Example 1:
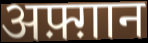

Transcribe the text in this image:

अफ़्ग़ान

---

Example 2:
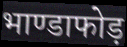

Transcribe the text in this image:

भाण्डाफोड़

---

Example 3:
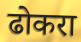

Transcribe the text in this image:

ढोकरा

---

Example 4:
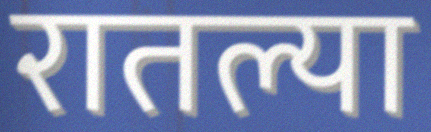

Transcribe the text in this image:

रातल्या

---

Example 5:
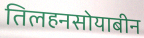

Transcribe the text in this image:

तिलहनसोयाबीन